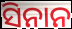
ସିନାନ